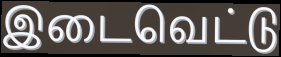
இடைவெட்டு